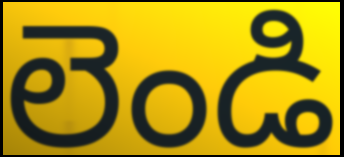
లెండి